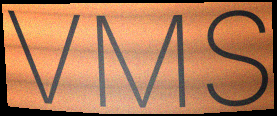
VMS